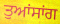
ਤੁਆਂਸਾਂਗ